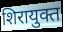
शिरायुक्त